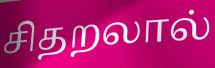
சிதறலால்